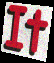
It